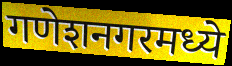
गणेशनगरमध्ये